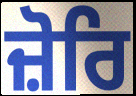
ਜ਼ੋਰਿ